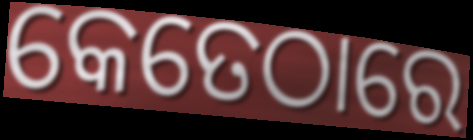
କେତେଠାରେ